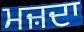
ਮਜ਼ਦਾ